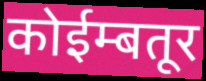
कोईम्बतूर